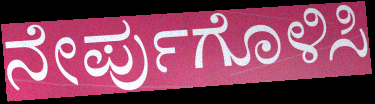
ನೇರ್ಪುಗೊಳಿಸಿ